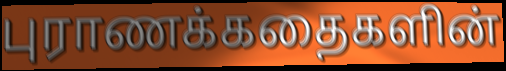
புராணக்கதைகளின்